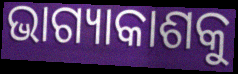
ଭାଗ୍ୟାକାଶକୁ